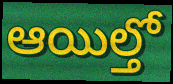
ఆయిల్తో